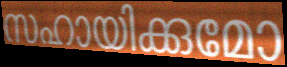
സഹായിക്കുമോ